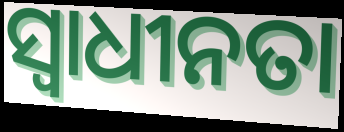
ସ୍ବାଧୀନତା